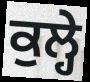
ਕੁਲ੍ਹੇ